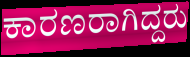
ಕಾರಣರಾಗಿದ್ದರು